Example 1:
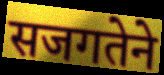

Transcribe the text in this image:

सजगतेने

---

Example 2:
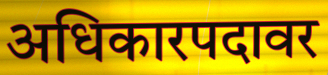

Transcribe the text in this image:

अधिकारपदावर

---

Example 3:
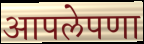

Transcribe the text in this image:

आपलेपणा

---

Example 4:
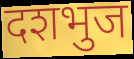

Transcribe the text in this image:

दशभुज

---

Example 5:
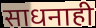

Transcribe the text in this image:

साधनाही